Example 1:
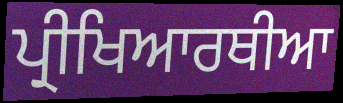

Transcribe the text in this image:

ਪ੍ਰੀਖਿਆਰਥੀਆ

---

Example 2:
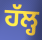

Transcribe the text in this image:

ਹੱਲ੍ਹ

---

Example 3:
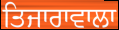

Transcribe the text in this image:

ਤਿਜਾਰਾਵਾਲਾ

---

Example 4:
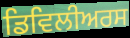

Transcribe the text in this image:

ਡਿਵਿਲੀਅਰਸ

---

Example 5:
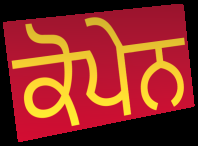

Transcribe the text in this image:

ਕੋਪੇਨ